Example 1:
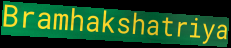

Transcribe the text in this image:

Bramhakshatriya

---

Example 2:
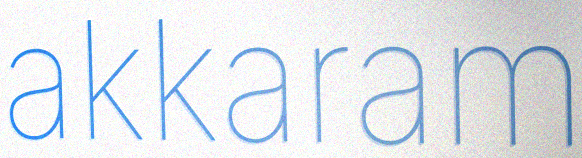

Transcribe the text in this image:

akkaram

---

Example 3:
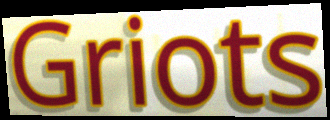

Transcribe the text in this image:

Griots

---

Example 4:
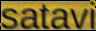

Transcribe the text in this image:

satavi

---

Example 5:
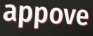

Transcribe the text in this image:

appove